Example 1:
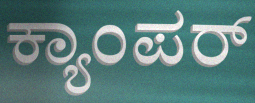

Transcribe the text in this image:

ಕ್ಯಾಂಪರ್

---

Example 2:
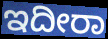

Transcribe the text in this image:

ಇದೀರಾ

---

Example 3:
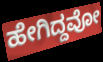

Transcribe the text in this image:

ಹೇಗಿದ್ದವೋ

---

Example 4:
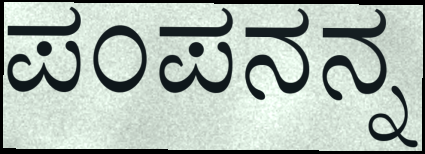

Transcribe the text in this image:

ಪಂಪನನ್ನ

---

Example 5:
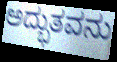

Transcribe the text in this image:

ಅದ್ಭುತವನು